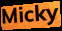
Micky